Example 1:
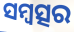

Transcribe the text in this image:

ସମ୍ବତ୍ସର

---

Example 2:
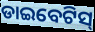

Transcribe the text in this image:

ଡାଇବେଟିସ୍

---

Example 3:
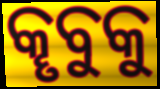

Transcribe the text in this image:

କୄବୁକୁ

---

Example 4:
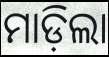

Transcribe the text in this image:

ମାଡ଼ିଲା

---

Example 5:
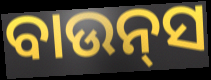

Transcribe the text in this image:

ବାଉନ୍‌ସ